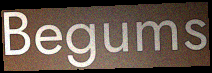
Begums